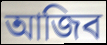
আজিব